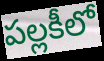
పల్లకీలో